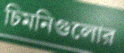
চিমনিগুলোর